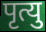
पृत्यु